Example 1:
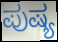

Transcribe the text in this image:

ಪುಷ್ಯ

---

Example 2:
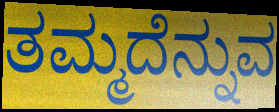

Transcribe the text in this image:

ತಮ್ಮದೆನ್ನುವ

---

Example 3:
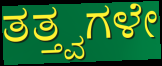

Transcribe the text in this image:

ತತ್ತ್ವಗಳೇ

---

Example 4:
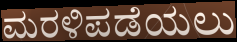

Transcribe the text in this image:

ಮರಳಿಪಡೆಯಲು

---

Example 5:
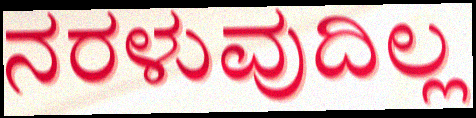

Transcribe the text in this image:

ನರಳುವುದಿಲ್ಲ